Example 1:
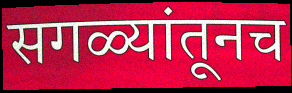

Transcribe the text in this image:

सगळ्यांतूनच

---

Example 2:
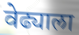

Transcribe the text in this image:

वेढ्याला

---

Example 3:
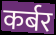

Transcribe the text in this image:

कर्बर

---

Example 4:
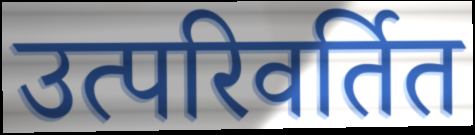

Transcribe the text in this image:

उत्परिवर्तित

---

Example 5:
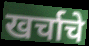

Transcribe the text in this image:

खर्चाचे